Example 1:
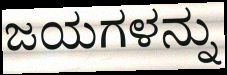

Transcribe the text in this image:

ಜಯಗಳನ್ನು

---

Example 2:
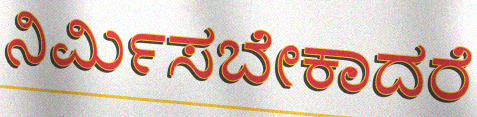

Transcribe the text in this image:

ನಿರ್ಮಿಸಬೇಕಾದರೆ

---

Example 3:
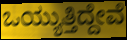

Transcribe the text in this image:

ಒಯ್ಯುತ್ತಿದ್ದೇವೆ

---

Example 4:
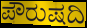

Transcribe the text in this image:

ಪೌರುಷದಿ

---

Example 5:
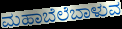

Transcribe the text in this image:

ಮಹಾಬೆಲೆಬಾಳುವ